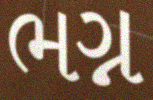
ભગ્ન